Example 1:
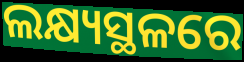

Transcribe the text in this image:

ଲକ୍ଷ୍ୟସ୍ଥଳରେ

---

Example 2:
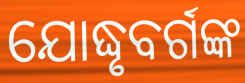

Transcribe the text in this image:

ଯୋଦ୍ଧୃବର୍ଗଙ୍କ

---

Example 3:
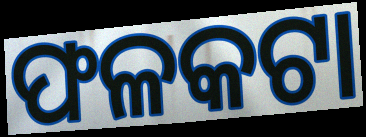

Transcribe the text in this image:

ଫଳକଟା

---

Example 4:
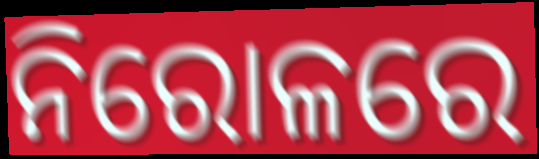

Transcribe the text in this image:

ନିରୋଳରେ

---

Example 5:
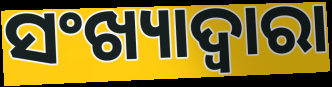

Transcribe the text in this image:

ସଂଖ୍ୟାଦ୍ୱାରା